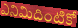
ఎనిమిదింటికో